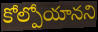
కోల్పోయానని